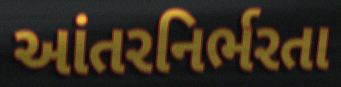
આંતરનિર્ભરતા